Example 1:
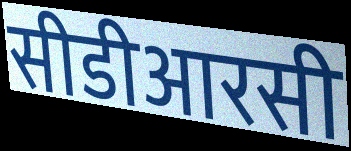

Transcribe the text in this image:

सीडीआरसी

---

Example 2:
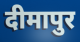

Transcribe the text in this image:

दीमापुर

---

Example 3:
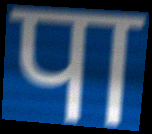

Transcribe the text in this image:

पा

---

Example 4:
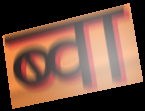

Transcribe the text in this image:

ब्वा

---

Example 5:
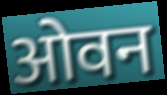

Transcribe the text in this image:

ओवन